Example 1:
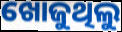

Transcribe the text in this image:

ଖୋଜୁଥିଲୁ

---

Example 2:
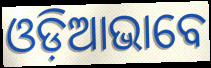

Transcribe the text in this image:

ଓଡ଼ିଆଭାବେ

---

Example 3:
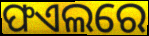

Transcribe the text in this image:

ଫଏଲରେ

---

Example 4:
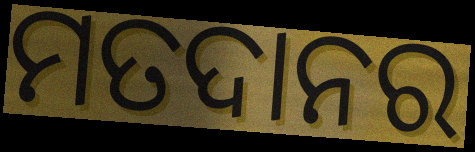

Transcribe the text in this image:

ମତଦାନର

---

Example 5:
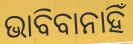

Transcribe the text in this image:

ଭାବିବାନାହିଁ